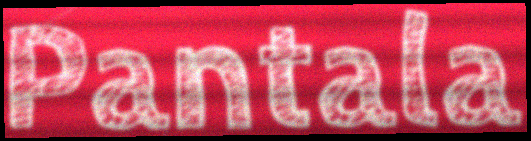
Pantala